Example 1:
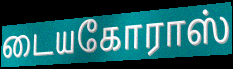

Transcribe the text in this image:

டையகோராஸ்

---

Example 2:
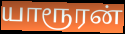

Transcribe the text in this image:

யாரூரன்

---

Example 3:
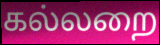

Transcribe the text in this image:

கல்லறை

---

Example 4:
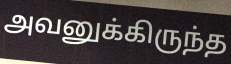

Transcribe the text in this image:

அவனுக்கிருந்த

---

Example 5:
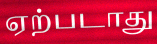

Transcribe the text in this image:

ஏற்படாது